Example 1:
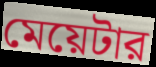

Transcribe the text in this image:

মেয়েটার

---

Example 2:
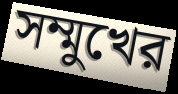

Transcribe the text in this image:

সম্মুখের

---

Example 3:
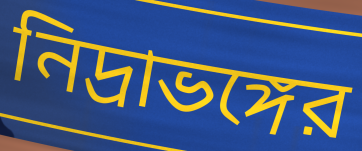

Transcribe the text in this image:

নিদ্রাভঙ্গের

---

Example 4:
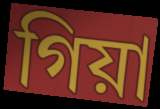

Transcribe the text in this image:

গিয়া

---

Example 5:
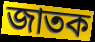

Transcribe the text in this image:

জাতক